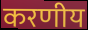
करणीय